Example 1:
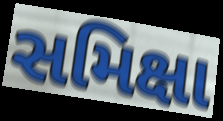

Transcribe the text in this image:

સમિક્ષા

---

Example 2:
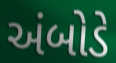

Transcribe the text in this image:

અંબોડે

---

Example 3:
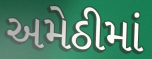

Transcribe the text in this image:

અમેઠીમાં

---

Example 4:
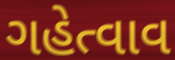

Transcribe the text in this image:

ગહેત્વાવ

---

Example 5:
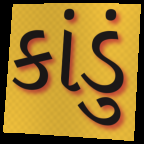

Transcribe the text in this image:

કાંડું